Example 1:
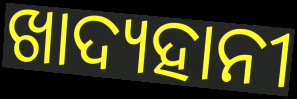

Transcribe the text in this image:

ଖାଦ୍ୟହାନୀ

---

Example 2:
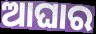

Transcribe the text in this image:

ଆଘାର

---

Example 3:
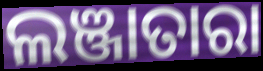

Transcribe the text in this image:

ଲଞ୍ଜାତାରା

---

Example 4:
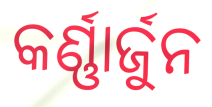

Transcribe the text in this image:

କର୍ଣ୍ଣାର୍ଜୁନ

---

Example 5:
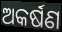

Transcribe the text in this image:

ଅକର୍ଷଣ